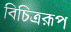
বিচিত্ররূপ